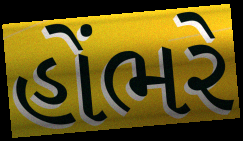
હોંભરે